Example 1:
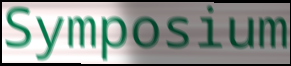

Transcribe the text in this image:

Symposium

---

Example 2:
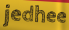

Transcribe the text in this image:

jedhee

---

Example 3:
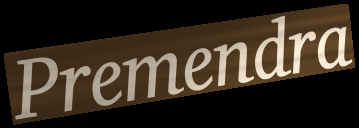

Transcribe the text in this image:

Premendra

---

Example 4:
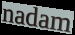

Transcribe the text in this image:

nadam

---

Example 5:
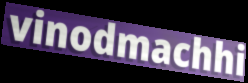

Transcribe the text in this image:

vinodmachhi